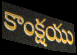
కాంక్షయు